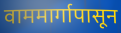
वाममार्गापासून